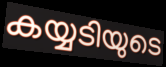
കയ്യടിയുടെ